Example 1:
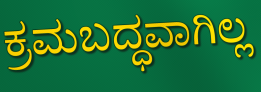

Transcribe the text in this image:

ಕ್ರಮಬದ್ಧವಾಗಿಲ್ಲ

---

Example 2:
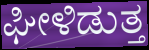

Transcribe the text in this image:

ಘೀಳಿಡುತ್ತ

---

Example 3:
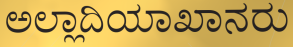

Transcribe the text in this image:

ಅಲ್ಲಾದಿಯಾಖಾನರು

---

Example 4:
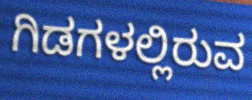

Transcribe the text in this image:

ಗಿಡಗಳಲ್ಲಿರುವ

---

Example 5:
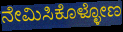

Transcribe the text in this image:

ನೇಮಿಸಿಕೊಳ್ಳೋಣ